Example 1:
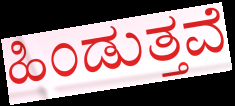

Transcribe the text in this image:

ಹಿಂಡುತ್ತವೆ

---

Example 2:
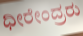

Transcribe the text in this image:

ಧೀರೇಂದ್ರರು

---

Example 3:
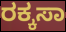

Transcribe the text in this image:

ರಕ್ಕಸಾ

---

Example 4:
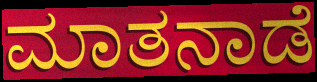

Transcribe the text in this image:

ಮಾತನಾಡೆ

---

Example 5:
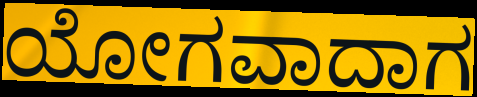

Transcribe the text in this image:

ಯೋಗವಾದಾಗ